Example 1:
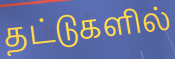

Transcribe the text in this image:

தட்டுகளில்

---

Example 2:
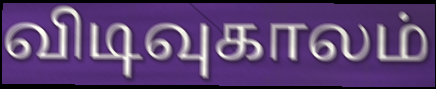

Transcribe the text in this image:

விடிவுகாலம்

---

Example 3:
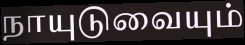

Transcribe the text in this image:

நாயுடுவையும்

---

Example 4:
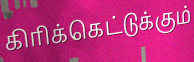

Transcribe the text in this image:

கிரிக்கெட்டுக்கும்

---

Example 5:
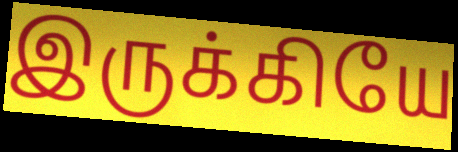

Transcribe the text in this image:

இருக்கியே